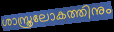
ശാസ്ത്രലോകത്തിനും